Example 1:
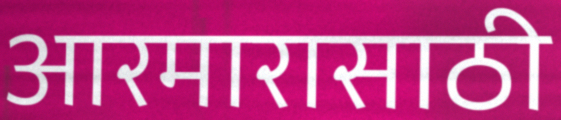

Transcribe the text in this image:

आरमारासाठी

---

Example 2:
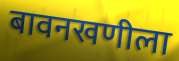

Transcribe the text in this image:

बावनखणीला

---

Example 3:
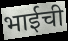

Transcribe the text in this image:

भाईची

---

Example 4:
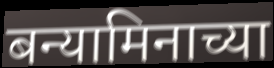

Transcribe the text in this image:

बन्यामिनाच्या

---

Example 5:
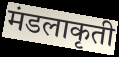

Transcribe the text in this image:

मंडलाकृती